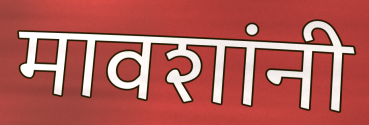
मावशांनी